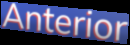
Anterior